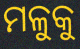
ମଳୁକୁ